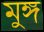
মুঙ্গ